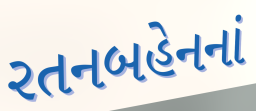
રતનબહેનનાં